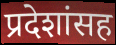
प्रदेशांसह